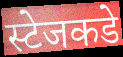
स्टेजकडे